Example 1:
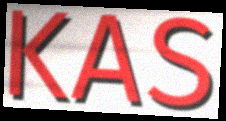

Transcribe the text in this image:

KAS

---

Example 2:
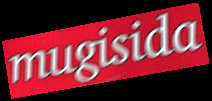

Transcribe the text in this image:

mugisida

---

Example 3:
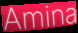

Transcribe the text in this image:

Amina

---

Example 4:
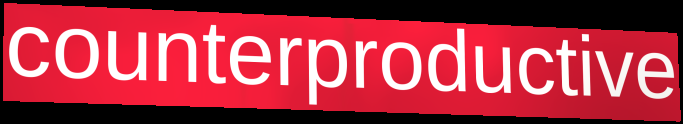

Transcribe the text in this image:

counterproductive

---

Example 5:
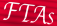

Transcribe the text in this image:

FTAs